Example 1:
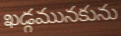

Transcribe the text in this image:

ఖడ్గమునకును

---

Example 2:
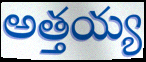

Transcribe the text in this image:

అత్తయ్య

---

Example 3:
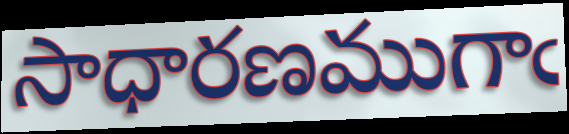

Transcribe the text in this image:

సాధారణముగాఁ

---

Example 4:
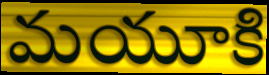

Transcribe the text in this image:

మయూకి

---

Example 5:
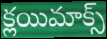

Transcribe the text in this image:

క్లయిమాక్స్